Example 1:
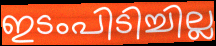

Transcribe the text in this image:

ഇടംപിടിച്ചില്ല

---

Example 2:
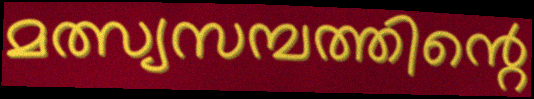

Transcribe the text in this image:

മത്സ്യസമ്പത്തിന്റെ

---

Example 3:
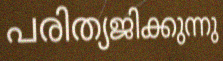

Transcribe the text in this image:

പരിത്യജിക്കുന്നു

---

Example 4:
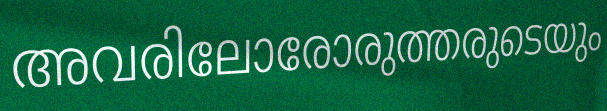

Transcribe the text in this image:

അവരിലോരോരുത്തരുടെയും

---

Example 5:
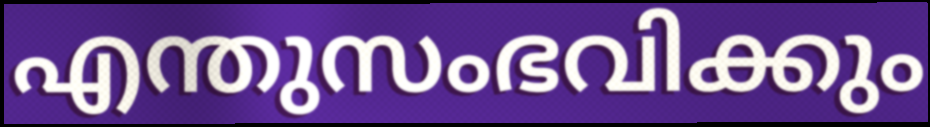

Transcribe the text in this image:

എന്തുസംഭവിക്കും